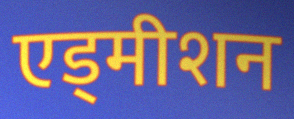
एड्मीशन